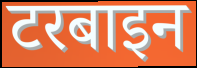
टरबाइन